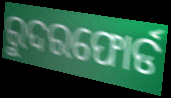
ରୁଦରଫୋର୍ଡ